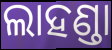
ଲାହଣ୍ଡା